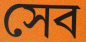
সেব